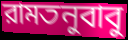
রামতনুবাবু